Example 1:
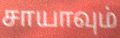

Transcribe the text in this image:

சாயாவும்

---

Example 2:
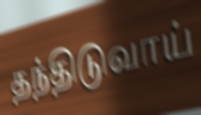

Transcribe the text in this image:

தந்திடுவாய்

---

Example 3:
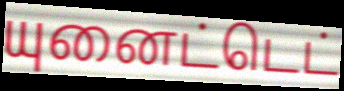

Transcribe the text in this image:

யுனைட்டெட்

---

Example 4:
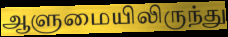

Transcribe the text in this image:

ஆளுமையிலிருந்து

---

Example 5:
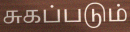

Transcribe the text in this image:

சுகப்படும்